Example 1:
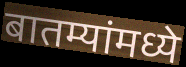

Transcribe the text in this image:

बातम्यांमध्ये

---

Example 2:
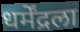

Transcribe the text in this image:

धर्मेंद्रला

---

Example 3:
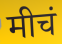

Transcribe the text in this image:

मीचं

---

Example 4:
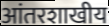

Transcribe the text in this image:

आंतरशाखीय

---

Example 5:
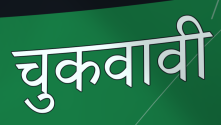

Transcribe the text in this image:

चुकवावी